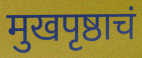
मुखपृष्ठाचं